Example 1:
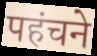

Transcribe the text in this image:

पहंचने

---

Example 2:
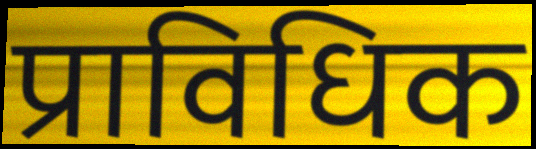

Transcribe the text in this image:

प्राविधिक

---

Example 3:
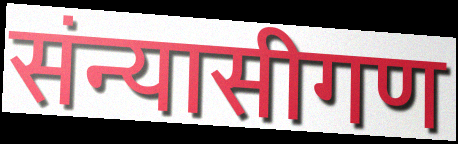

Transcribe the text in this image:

संन्यासीगण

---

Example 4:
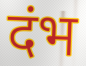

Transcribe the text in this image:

दंभ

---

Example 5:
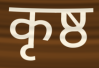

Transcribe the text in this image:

कृष्ठ